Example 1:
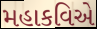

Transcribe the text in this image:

મહાકવિએ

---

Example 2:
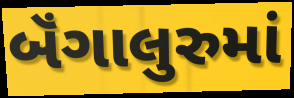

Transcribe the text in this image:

બૅંગાલુરુમાં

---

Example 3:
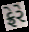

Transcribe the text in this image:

ફ્રેરે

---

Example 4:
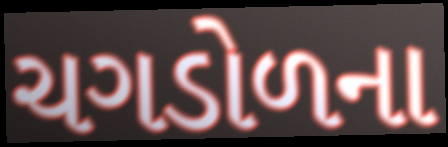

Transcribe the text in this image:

ચગડોળના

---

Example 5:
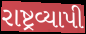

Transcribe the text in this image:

રાષ્ટ્રવ્યાપી